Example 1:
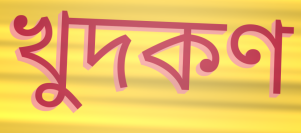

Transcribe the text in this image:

খুদকণ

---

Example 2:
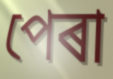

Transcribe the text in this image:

পেৰা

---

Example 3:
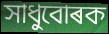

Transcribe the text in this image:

সাধুবোৰক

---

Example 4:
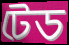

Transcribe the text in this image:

টেড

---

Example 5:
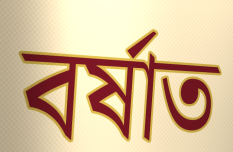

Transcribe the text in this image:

বৰ্ষাত